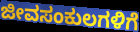
ಜೀವಸಂಕುಲಗಳಿಗೆ